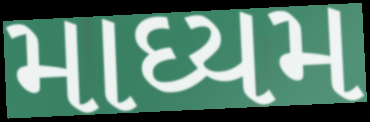
માઘ્યમ